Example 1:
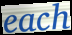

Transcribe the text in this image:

each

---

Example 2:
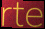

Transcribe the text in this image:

rte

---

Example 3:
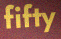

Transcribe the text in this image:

fifty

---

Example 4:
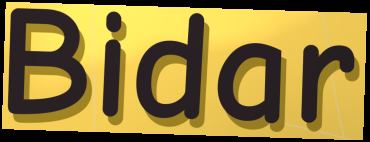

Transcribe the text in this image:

Bidar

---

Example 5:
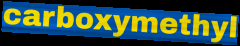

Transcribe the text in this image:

carboxymethyl